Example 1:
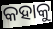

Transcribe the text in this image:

କହାକୁ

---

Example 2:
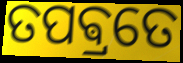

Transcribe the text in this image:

ତପଵ୍ରତେ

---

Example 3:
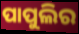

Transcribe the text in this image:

ପାପୁଲିର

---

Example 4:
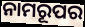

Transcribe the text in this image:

ନାମରୂପର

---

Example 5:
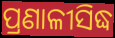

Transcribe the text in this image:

ପ୍ରଣାଳୀସିଦ୍ଧ